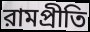
রামপ্রীতি